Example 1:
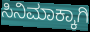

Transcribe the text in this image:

ಸಿನಿಮಾಕ್ಕಾಗಿ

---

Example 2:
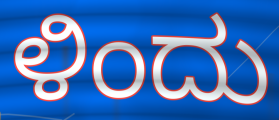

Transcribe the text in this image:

ಳಿಂದು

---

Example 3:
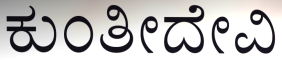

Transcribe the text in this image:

ಕುಂತೀದೇವಿ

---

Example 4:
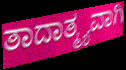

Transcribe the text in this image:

ತಾದಾತ್ಮ್ಯವಾಗಿ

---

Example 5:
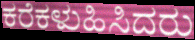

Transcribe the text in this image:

ಕರೆಕಳುಹಿಸಿದರು